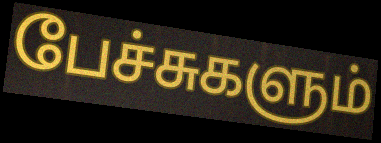
பேச்சுகளும்